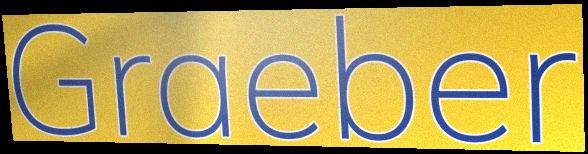
Graeber